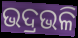
ଭଦ୍ରଭଳି